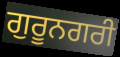
ਗੁਰੂਨਗਰੀ